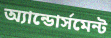
অ্যান্ডোর্সমেন্ট